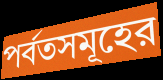
পর্বতসমূহের